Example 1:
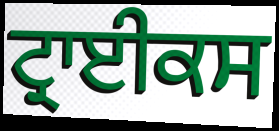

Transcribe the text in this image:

ਟ੍ਰਾਈਕਸ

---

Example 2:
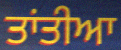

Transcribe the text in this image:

ਤਾਂਤੀਆ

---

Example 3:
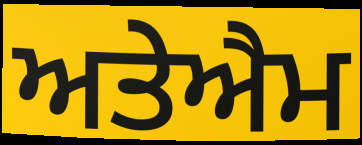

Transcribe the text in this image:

ਅਤੇਐਮ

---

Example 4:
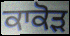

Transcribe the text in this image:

ਕਾਕੋੜ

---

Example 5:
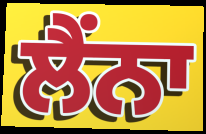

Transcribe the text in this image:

ਲੈਂਨਾ